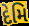
દેમિ